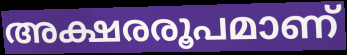
അക്ഷരരൂപമാണ്